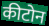
कीटोन